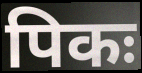
पिकः